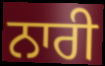
ਨਾਰੀ